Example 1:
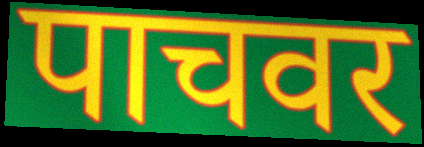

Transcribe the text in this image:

पाचवर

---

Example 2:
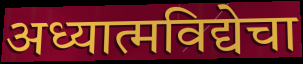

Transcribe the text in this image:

अध्यात्मविद्येचा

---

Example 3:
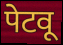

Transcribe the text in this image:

पेटवू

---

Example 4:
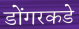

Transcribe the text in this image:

डोंगरकडे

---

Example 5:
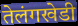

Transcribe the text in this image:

तेलंगखेडी